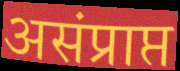
असंप्राप्त